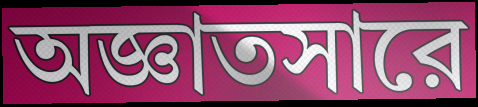
অজ্ঞাতসারে